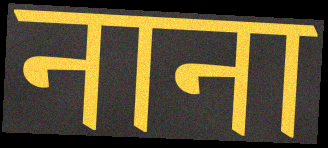
नाना